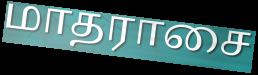
மாதராசை